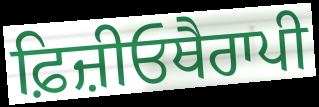
ਫ਼ਿਜ਼ੀਓਥੈਰਾਪੀ